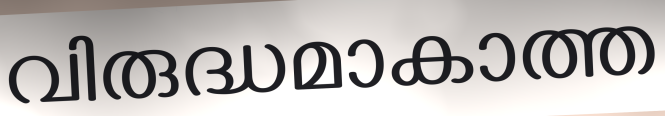
വിരുദ്ധമാകാത്ത